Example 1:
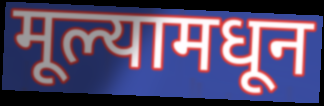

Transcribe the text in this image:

मूल्यामधून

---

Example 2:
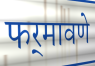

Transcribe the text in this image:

फर्मावणे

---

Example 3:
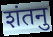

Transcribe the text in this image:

शंतनु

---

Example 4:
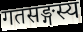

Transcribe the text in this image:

गतसङ्गस्य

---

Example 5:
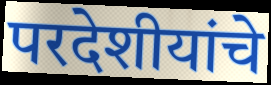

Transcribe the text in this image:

परदेशीयांचे